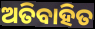
ଅତିବାହିତ